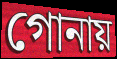
গোনায়